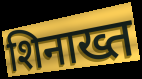
शिनाख्त